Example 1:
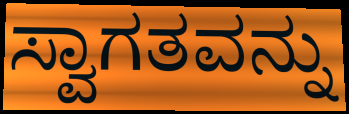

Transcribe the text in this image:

ಸ್ವಾಗತವನ್ನು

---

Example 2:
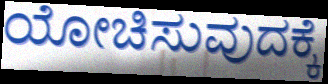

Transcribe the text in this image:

ಯೋಚಿಸುವುದಕ್ಕೆ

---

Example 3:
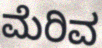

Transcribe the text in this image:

ಮೆರಿವ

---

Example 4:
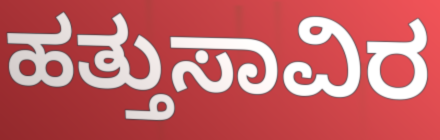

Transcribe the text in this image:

ಹತ್ತುಸಾವಿರ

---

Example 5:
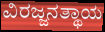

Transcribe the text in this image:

ವಿರಜ್ಜನತ್ಥಾಯ